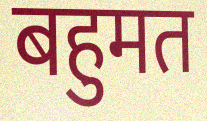
बहुमत